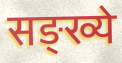
सङ्ख्ये